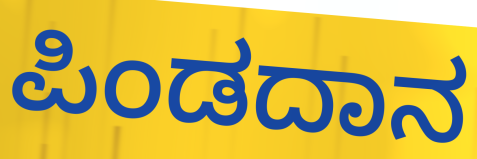
ಪಿಂಡದಾನ